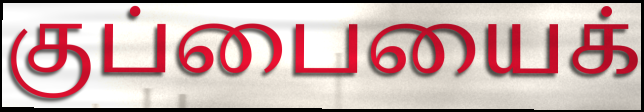
குப்பையைக்